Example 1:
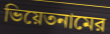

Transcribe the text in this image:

ভিয়েতনামের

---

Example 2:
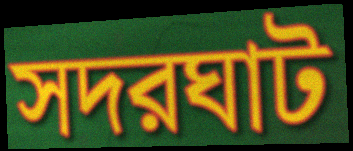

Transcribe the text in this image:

সদরঘাট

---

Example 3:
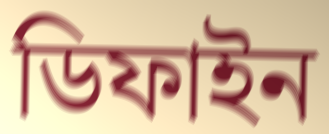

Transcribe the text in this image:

ডিফাইন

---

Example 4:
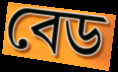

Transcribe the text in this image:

বেড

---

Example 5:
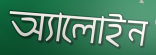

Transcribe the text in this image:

অ্যালোইন